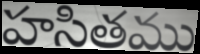
హసితము